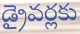
డ్రైవర్లకు